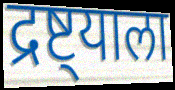
द्रष्ट्याला